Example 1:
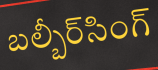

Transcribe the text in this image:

బల్బీర్‌సింగ్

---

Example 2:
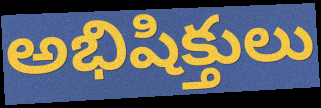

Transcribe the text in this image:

అభిషిక్తులు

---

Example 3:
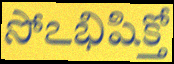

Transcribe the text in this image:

సోఽభిషిక్తో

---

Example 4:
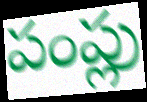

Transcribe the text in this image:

పంప్లు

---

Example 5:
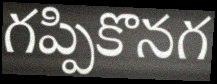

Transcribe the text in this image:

గప్పికొనగ